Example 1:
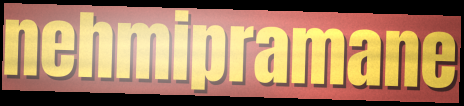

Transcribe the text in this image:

nehmipramane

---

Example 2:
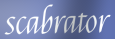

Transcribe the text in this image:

scabrator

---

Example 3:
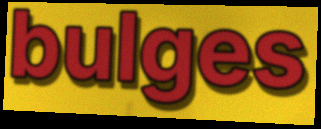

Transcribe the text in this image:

bulges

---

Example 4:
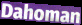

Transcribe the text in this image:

Dahoman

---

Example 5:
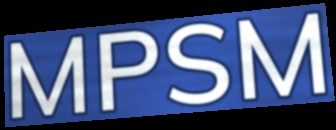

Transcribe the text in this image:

MPSM